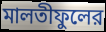
মালতীফুলের